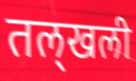
तल्खली